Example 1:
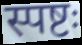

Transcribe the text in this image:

स्पष्टः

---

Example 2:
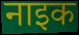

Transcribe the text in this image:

नाइक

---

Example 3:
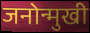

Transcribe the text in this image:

जनोन्मुखी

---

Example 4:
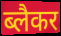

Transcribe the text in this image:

ब्लैकर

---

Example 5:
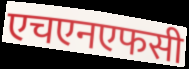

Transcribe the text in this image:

एचएनएफसी